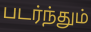
படர்ந்தும்